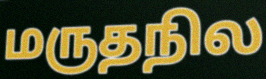
மருதநில